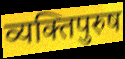
व्यक्तिपुरुष